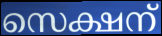
സെക്ഷന്